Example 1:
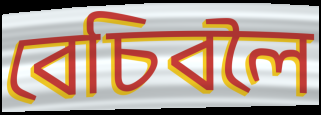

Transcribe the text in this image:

বেচিবলৈ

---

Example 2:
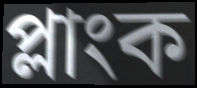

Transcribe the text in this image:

প্লাংক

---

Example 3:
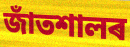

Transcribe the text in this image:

জাঁতশালৰ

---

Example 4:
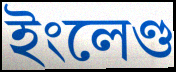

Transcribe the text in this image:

ইংলেণ্ড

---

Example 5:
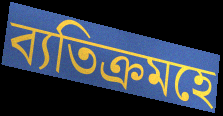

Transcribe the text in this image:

ব্যতিক্ৰমহে